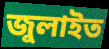
জুলাইত